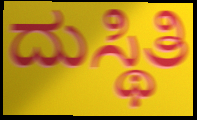
ದುಸ್ಥಿತಿ